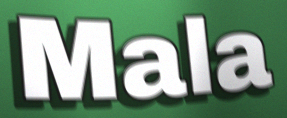
Mala